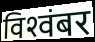
विश्वंबर